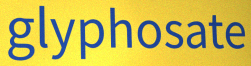
glyphosate